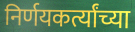
निर्णयकर्त्यांच्या